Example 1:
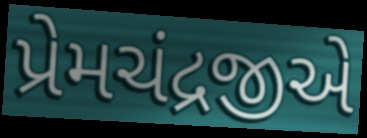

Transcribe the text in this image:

પ્રેમચંદ્રજીએ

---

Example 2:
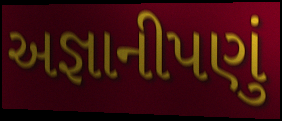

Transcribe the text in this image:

અજ્ઞાનીપણું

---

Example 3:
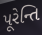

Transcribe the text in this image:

પૂરેન્તિ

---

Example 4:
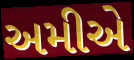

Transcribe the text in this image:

અમીએ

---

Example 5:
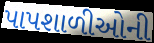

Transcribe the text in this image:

પાપશાળીઓની